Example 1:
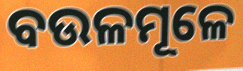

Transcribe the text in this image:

ବଉଳମୂଳେ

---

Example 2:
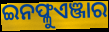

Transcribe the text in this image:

ଇନଫ୍ଳୁଏଞ୍ଜାର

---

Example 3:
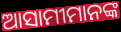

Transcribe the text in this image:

ଆସାମୀମାନଙ୍କ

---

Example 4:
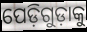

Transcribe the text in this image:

ପେଡ଼ିଗୁଡ଼ାକୁ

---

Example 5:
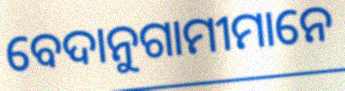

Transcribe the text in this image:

ବେଦାନୁଗାମୀମାନେ